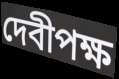
দেবীপক্ষ